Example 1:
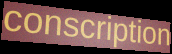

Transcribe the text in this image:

conscription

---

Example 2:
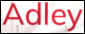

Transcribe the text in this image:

Adley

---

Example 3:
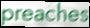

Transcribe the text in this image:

preaches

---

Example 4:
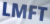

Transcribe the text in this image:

LMFT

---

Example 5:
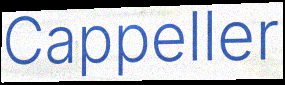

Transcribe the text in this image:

Cappeller